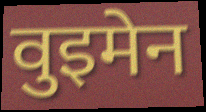
वुइमेन